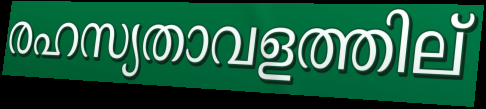
രഹസ്യതാവളത്തില്